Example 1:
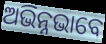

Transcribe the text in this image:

ଅଭିନ୍ନଭାବେ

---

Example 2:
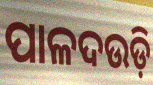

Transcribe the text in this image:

ପାଳଦଉଡ଼ି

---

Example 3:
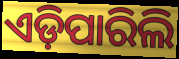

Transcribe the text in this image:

ଏଡ଼ିପାରିଲି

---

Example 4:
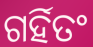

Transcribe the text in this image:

ଗର୍ହିତଂ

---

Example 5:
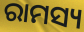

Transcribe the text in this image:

ରାମସ୍ୟ